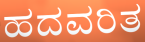
ಹದವರಿತ